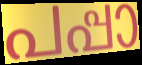
പപ്പാ